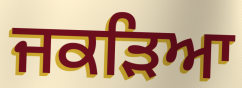
ਜਕੜਿਆ